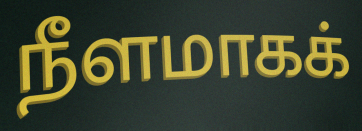
நீளமாகக்